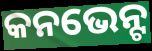
କନଭେନ୍ଟ